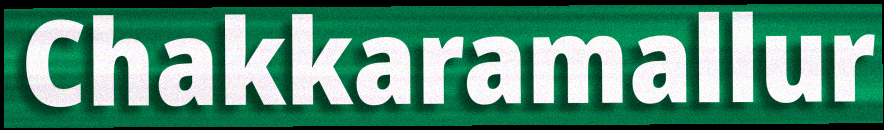
Chakkaramallur